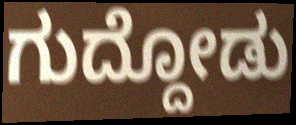
ಗುದ್ದೋಡು